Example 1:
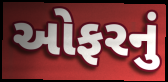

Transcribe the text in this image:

ઓફરનું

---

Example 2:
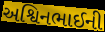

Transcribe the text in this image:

અશ્વિનભાઈની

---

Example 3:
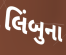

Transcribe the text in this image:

લિંબુના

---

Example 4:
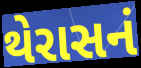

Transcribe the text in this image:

થેરાસનં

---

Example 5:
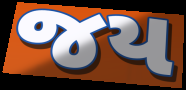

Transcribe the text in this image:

જય